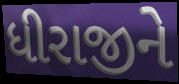
ધીરાજીને